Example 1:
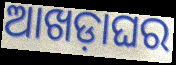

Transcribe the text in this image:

ଆଖଡ଼ାଘର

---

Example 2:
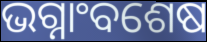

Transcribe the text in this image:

ଭଗ୍ନାଂବଶେଷ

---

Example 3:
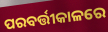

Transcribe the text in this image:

ପରବର୍ତ୍ତୀକାଳରେ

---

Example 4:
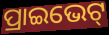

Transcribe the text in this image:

ପ୍ରାଇଭେଟ୍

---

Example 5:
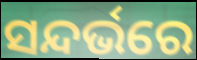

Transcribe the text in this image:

ସନ୍ଦର୍ଭରେ